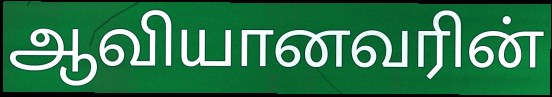
ஆவியானவரின்